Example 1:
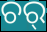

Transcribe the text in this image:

ଚର୍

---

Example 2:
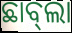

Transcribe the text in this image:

ଛାବ୍‍ଲା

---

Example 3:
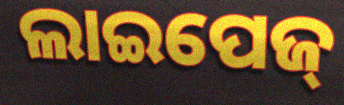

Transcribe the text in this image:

ଲାଇପେଜ୍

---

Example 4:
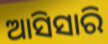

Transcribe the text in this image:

ଆସିସାରି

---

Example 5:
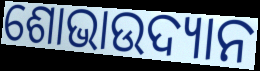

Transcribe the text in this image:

ଶୋଭାଉଦ୍ୟାନ